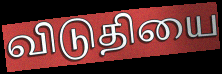
விடுதியை